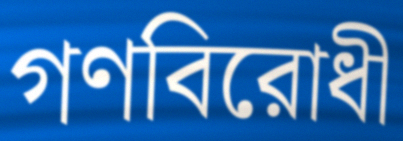
গণবিরোধী